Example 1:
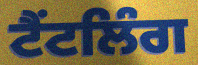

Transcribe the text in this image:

ਟੈਂਟਲਿੰਗ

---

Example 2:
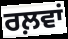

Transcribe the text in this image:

ਰਲ਼ਵਾਂ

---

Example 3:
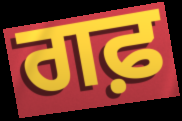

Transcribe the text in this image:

ਗਫ਼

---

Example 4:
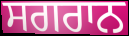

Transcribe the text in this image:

ਸਗਰਾਨ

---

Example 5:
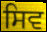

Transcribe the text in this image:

ਸਿਵ